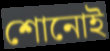
শোনোই